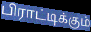
பிராட்டிக்கும்